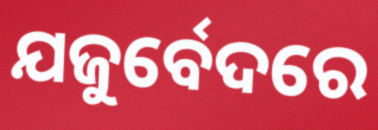
ଯଜୁର୍ବେଦରେ